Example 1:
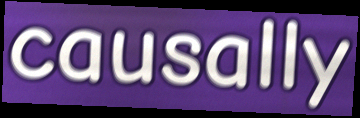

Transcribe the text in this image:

causally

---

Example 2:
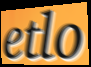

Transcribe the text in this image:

etlo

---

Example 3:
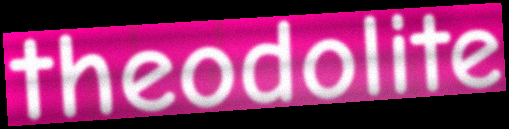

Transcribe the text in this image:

theodolite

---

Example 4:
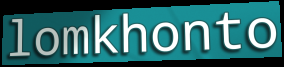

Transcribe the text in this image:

lomkhonto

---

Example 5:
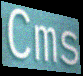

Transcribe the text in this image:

Cms